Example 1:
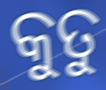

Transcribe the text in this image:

କୁତୁ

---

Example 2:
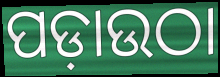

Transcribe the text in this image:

ପଡ଼ାଉଠା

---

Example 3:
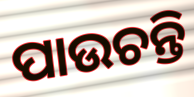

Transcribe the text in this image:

ପାଉଚନ୍ତି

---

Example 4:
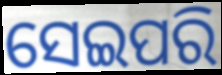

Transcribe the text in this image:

ସେଇପରି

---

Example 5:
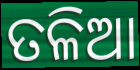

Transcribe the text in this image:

ତଳିଆ